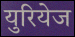
युरियेज